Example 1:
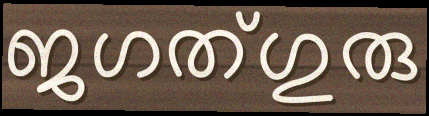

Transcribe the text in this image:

ജഗത്ഗുരു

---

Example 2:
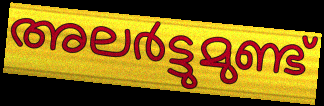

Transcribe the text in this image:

അലർട്ടുമുണ്ട്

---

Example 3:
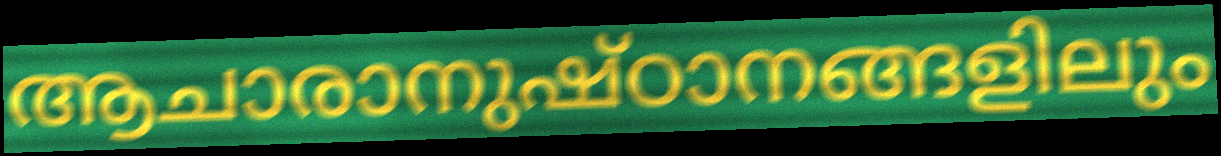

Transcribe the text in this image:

ആചാരാനുഷ്ഠാനങ്ങളിലും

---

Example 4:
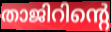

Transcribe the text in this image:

താജിറിന്റെ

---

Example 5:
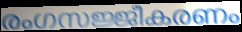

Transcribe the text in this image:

രംഗസജ്ജീകരണം